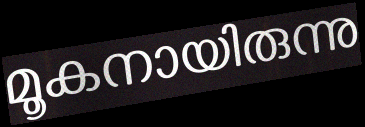
മൂകനായിരുന്നു